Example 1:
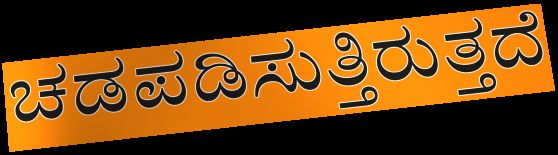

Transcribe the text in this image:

ಚಡಪಡಿಸುತ್ತಿರುತ್ತದೆ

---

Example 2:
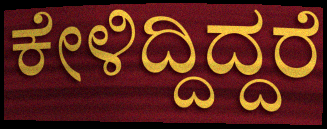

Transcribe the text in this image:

ಕೇಳಿದ್ದಿದ್ದರೆ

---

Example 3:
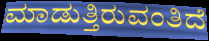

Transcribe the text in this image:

ಮಾಡುತ್ತಿರುವಂತಿದೆ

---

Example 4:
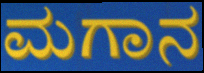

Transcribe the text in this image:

ಮಗಾನ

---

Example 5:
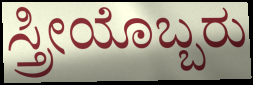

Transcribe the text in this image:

ಸ್ತ್ರೀಯೊಬ್ಬರು